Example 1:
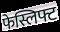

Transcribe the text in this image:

फेस्लिफ्ट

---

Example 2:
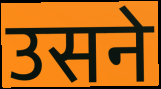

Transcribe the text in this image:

उसने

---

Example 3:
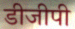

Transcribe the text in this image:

डीजीपी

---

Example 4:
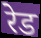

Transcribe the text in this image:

रेड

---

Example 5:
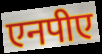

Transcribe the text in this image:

एनपीए